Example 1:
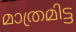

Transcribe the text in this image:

മാത്രമിട്ട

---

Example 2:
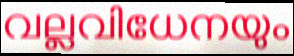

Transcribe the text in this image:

വല്ലവിധേനയും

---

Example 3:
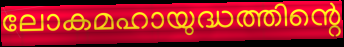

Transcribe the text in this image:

ലോകമഹായുദ്ധത്തിന്റെ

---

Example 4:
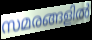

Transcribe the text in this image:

സമരങ്ങളിൽ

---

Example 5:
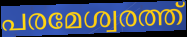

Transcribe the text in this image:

പരമേശ്വരത്ത്